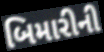
બિમારીની